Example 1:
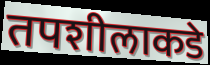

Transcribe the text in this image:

तपशीलाकडे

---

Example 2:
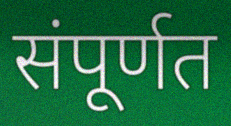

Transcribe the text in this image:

संपूर्णत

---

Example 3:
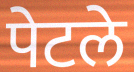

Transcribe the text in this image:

पेटले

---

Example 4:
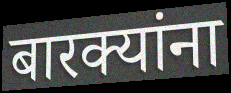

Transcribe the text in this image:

बारक्यांना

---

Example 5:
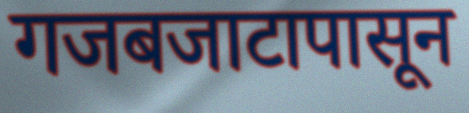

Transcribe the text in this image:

गजबजाटापासून